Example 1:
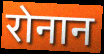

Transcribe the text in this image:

रोनान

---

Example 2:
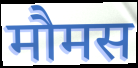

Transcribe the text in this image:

मौमस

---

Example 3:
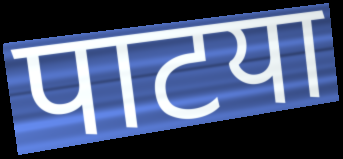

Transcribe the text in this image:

पाटया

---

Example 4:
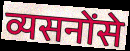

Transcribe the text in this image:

व्यसनोंसे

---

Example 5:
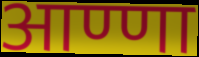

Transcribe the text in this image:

आण्णा